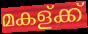
മകള്ക്ക്